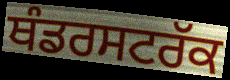
ਥੰਡਰਸਟਰੱਕ